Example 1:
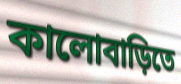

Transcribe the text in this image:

কালোবাড়িতে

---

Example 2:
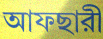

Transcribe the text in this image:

আফছারী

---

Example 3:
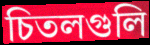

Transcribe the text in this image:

চিতলগুলি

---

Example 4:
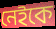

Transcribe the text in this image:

নেইকে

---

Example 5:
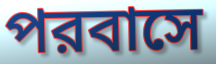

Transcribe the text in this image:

পরবাসে